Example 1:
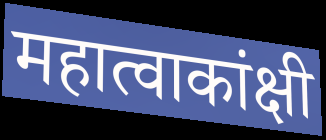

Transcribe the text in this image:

महात्वाकांक्षी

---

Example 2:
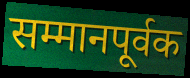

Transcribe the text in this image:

सम्मानपूर्वक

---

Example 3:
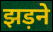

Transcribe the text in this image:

झड़ने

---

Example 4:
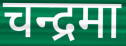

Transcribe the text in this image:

चन्द्रमा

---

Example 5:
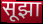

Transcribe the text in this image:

सूझा